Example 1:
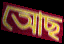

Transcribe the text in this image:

আেছ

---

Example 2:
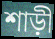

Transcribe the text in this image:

শাড়ী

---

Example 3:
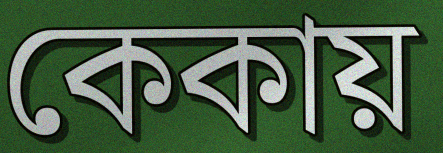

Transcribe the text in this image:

কেকায়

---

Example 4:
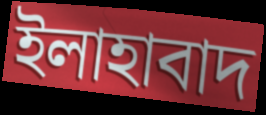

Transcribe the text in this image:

ইলাহাবাদ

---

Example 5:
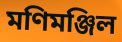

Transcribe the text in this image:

মণিমঞ্জিল